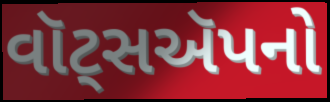
વૉટ્સઍપનો